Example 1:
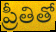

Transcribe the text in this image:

ప్రీతితో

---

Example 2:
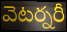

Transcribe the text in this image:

వెటర్నరీ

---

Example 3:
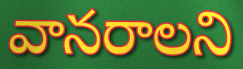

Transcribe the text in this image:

వానరాలని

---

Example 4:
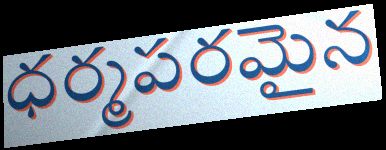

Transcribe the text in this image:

ధర్మపరమైన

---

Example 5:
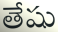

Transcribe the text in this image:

తేషు